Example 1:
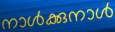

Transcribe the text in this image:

നാൾക്കുനാൾ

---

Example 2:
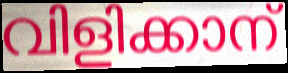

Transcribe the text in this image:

വിളിക്കാന്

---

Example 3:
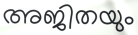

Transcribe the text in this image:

അജിതയും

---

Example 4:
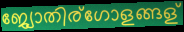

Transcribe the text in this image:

ജ്യോതിര്ഗോളങ്ങള്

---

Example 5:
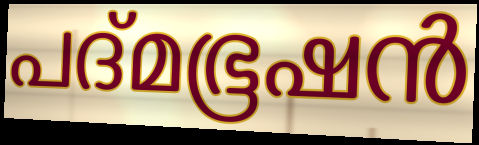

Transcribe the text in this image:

പദ്മഭൂഷൻ